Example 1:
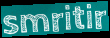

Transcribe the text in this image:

smritir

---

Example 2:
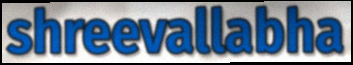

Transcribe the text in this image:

shreevallabha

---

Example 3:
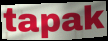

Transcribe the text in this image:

tapak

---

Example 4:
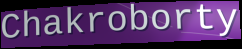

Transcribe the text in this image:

Chakroborty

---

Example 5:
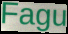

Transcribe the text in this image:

Fagu